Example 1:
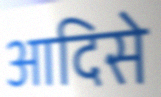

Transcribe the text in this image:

आदिसे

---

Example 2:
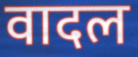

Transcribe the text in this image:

वादल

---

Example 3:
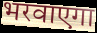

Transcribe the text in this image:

भरवाएगा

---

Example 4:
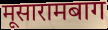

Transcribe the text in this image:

मूसारामबाग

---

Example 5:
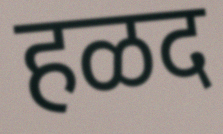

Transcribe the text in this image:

हळद